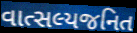
વાત્સલ્યજનિત